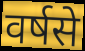
वर्षसे